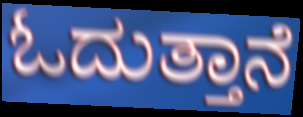
ಓದುತ್ತಾನೆ